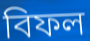
বিফল